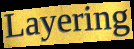
Layering